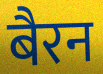
बैरन